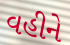
વહીને